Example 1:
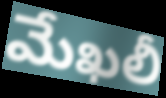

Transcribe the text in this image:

మేఖలీ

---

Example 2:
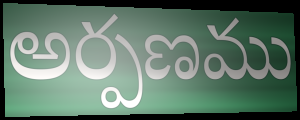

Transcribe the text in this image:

అర్పణము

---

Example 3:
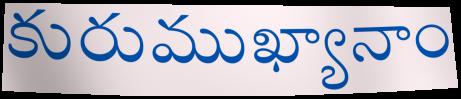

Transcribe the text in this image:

కురుముఖ్యానాం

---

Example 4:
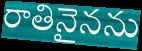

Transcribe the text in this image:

రాతినైనను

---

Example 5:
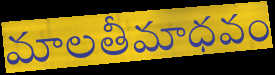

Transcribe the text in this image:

మాలతీమాధవం